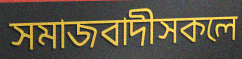
সমাজবাদীসকলে